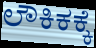
ಲೌಕಿಕಕ್ಕೆ